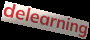
delearning